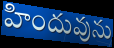
హిందువును